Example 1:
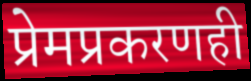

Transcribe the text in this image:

प्रेमप्रकरणही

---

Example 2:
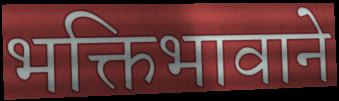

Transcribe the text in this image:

भक्तिभावाने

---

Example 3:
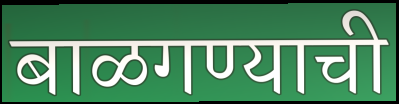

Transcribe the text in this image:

बाळगण्याची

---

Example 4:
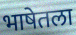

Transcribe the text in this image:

भाषेतला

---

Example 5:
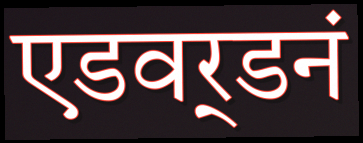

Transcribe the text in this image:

एडवर्डनं